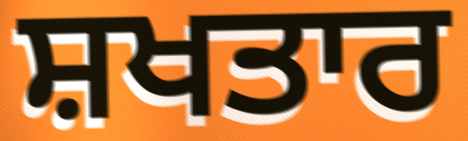
ਸ਼ਖਤਾਰ